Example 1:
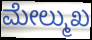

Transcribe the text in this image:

ಮೇಲ್ಮುಖ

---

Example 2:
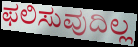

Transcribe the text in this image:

ಫಲಿಸುವುದಿಲ್ಲ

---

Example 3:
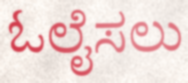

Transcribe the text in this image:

ಓಲೈಸಲು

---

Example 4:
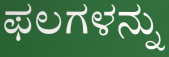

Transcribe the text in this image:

ಫಲಗಳನ್ನು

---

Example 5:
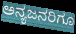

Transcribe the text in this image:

ಅನ್ಯಜನರಿಗೂ